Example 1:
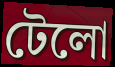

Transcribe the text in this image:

টেলো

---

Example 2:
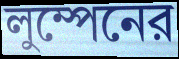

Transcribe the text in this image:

লুম্পেনের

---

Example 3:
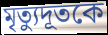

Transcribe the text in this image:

মৃত্যুদূতকে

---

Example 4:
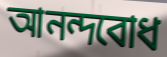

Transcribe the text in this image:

আনন্দবোধ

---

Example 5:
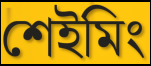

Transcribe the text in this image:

শেইমিং